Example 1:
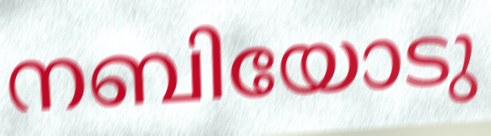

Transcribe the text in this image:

നബിയോടു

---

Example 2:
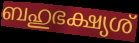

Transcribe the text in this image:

ബഹുഭക്ഷ്യശ്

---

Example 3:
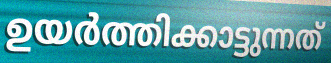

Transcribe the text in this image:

ഉയർത്തിക്കാട്ടുന്നത്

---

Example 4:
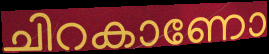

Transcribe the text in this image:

ചിറകാണോ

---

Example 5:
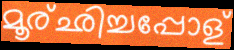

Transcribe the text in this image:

മൂര്ഛിച്ചപ്പോള്